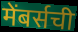
मेंबर्सची